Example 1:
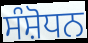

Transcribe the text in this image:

ਸੰਸ਼ੋਧਨ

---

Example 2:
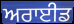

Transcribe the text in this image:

ਅਰਾਈਡ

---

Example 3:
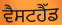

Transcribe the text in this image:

ਵੈਸਟਹੈੱਡ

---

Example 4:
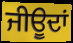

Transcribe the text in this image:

ਜੀਊਦਾਂ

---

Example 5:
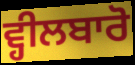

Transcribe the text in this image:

ਵ੍ਹੀਲਬਾਰੋ